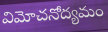
విమోచనోద్యమం